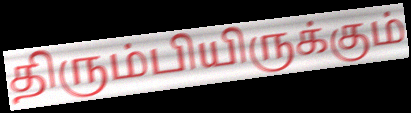
திரும்பியிருக்கும்